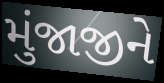
મુંજાજીને